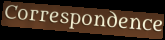
Correspondence